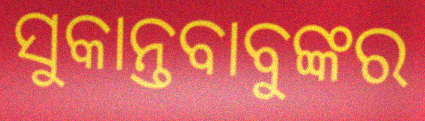
ସୁକାନ୍ତବାବୁଙ୍କର